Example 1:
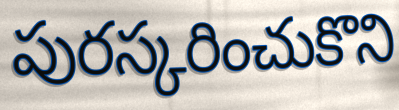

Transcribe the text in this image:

పురస్కరించుకొని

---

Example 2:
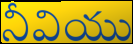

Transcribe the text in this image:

నీవియు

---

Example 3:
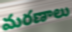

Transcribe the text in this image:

మరణాలు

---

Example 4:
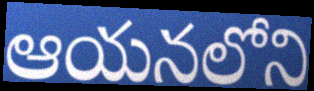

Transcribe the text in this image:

ఆయనలోని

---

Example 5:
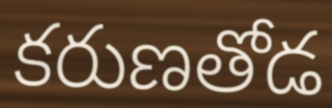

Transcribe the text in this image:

కరుణతోడ